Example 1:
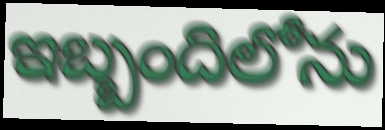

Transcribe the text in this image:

ఇబ్బందిలోను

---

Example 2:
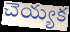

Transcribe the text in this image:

చెయ్యక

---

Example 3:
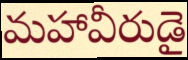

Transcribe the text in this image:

మహావీరుడై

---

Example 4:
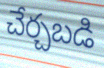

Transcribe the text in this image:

చేర్చబడి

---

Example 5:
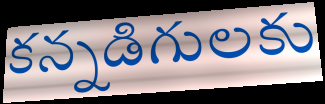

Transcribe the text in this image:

కన్నడిగులకు